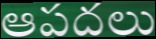
ఆపదలు